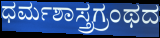
ಧರ್ಮಶಾಸ್ತ್ರಗ್ರಂಥದ